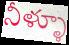
నీళ్ళూ